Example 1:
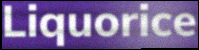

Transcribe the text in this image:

Liquorice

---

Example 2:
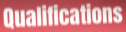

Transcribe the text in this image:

Qualifications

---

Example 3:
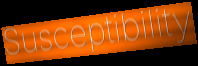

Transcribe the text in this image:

Susceptibility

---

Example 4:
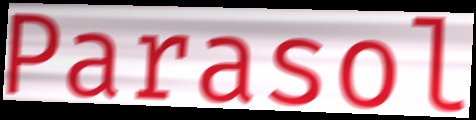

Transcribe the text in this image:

Parasol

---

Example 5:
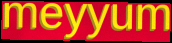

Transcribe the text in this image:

meyyum